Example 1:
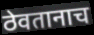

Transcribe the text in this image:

ठेवतानाच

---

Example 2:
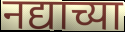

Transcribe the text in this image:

नद्याच्या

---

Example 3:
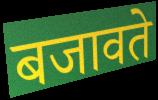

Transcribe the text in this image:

बजावते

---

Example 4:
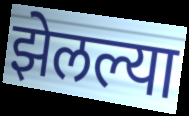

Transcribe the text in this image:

झेलल्या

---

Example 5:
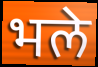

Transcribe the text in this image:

भले